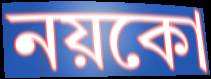
নয়কো